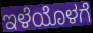
ಇಳೆಯೊಳಗೆ